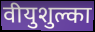
वीयुशुल्का